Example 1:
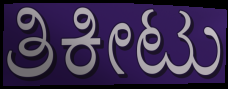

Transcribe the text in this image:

ತಿಕೀಟು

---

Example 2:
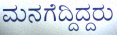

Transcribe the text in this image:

ಮನಗೆದ್ದಿದ್ದರು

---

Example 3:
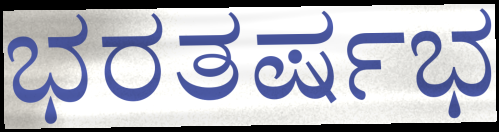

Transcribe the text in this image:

ಭರತರ್ಷಭ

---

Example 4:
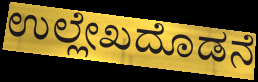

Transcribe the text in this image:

ಉಲ್ಲೇಖದೊಡನೆ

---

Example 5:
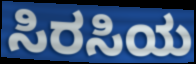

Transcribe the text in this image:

ಸಿರಸಿಯ